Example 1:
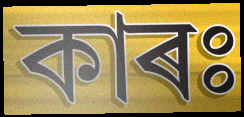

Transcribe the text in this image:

কাৰঃ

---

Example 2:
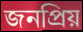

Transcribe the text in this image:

জনপ্ৰিয়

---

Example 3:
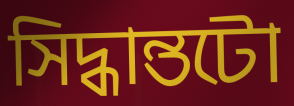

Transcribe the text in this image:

সিদ্ধান্তটো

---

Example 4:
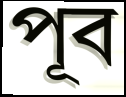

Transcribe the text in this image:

পূব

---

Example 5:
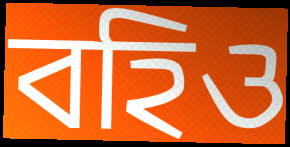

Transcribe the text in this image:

বহিও